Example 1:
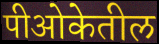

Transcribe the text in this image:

पीओकेतील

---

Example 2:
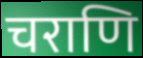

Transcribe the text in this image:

चराणि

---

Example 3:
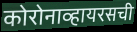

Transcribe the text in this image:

कोरोनाव्हायरसची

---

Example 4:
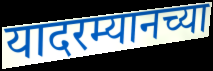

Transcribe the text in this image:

यादरम्यानच्या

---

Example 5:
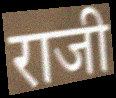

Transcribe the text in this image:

राजी